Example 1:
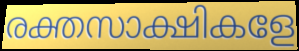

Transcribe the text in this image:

രക്തസാക്ഷികളേ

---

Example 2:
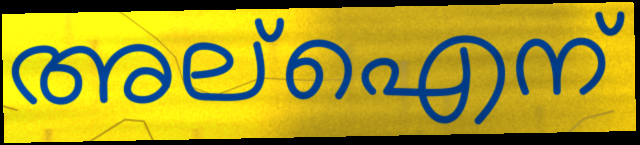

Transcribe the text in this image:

അല്ഐന്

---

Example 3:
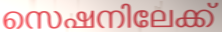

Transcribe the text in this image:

സെഷനിലേക്ക്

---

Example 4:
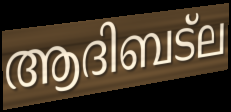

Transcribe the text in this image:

ആദിബട്ല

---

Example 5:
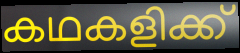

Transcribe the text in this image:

കഥകളിക്ക്